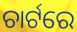
ଚାର୍ଟରେ